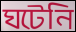
ঘটেনি